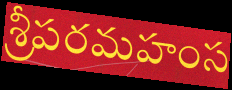
శ్రీపరమహంస